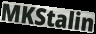
MKStalin